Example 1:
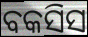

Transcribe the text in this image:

ବକସିସ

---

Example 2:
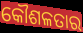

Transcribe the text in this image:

କୌଶଳତାର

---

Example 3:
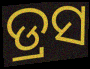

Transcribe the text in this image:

ଡ୍ରସ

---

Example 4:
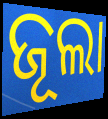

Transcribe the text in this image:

ଜୂଲା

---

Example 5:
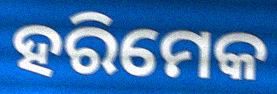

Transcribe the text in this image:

ହରିମେକ